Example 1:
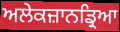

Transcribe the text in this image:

ਅਲੇਕਜ਼ਾਨਡ੍ਰਿਆ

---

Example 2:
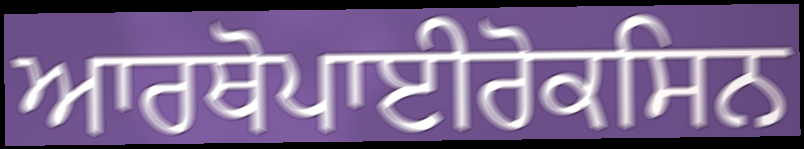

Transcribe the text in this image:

ਆਰਥੋਪਾਈਰੋਕਸਿਨ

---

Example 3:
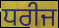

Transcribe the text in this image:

ਧਰੀਜ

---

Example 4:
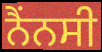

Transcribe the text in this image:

ਨੈਂਨਸੀ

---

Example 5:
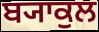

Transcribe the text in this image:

ਬ੍ਯਾਕੁਲ